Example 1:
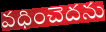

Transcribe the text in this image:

వధించెదను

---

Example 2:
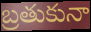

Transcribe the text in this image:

బ్రతుకునా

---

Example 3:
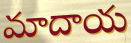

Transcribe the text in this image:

మాదాయ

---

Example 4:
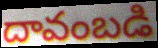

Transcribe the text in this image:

దావంబడి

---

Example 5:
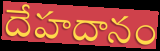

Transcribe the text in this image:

దేహదానం